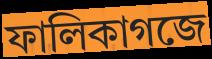
ফালিকাগজে